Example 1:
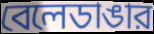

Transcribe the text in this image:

বেলেডাঙার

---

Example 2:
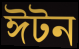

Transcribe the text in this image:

ঈটন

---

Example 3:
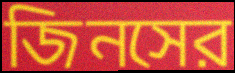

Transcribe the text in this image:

জিনসের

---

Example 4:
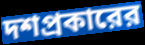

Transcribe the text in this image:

দশপ্রকারের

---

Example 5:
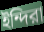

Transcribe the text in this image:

ইন্দিরা